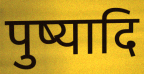
पुष्यादि